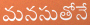
మనసుతోనే